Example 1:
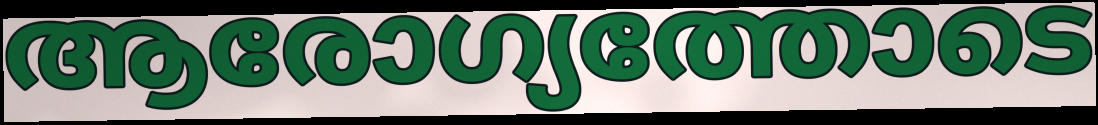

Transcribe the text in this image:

ആരോഗ്യത്തോടെ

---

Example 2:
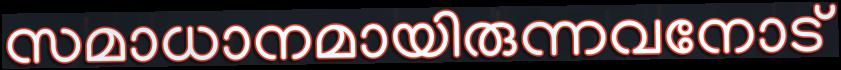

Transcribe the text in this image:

സമാധാനമായിരുന്നവനോട്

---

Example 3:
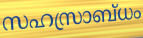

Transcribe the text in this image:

സഹസ്രാബ്ധം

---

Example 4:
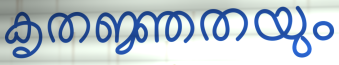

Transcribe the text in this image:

കൃതജ്ഞതയും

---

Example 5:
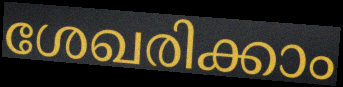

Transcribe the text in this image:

ശേഖരിക്കാം